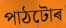
পাঠটোৰ